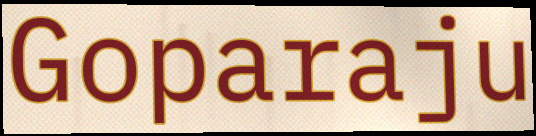
Goparaju